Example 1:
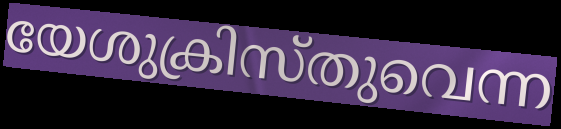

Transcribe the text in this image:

യേശുക്രിസ്തുവെന്ന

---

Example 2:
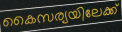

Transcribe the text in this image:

കൈസര്യയിലേക്ക്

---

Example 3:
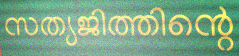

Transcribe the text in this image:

സത്യജിത്തിന്റെ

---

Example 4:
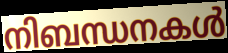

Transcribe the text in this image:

നിബന്ധനകൾ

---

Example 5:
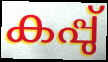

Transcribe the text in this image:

കപ്പു്